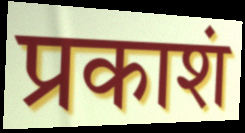
प्रकाशं